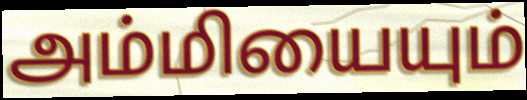
அம்மியையும்